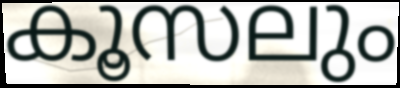
കൂസലും